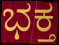
ಭಕ್ತ